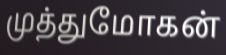
முத்துமோகன்